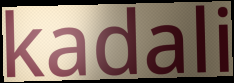
kadali